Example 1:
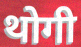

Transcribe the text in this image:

थोगी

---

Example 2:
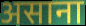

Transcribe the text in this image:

असाना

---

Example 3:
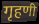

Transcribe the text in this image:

गृहणी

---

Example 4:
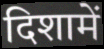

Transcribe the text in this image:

दिशामें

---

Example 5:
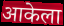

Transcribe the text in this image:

आकेला